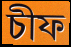
চীফ